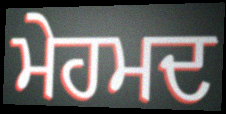
ਮੇਹਮਦ